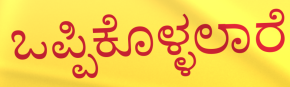
ಒಪ್ಪಿಕೊಳ್ಳಲಾರೆ